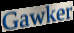
Gawker